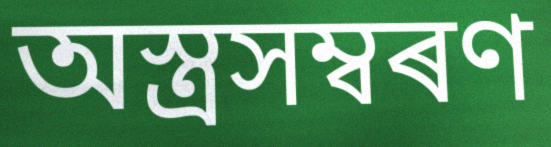
অস্ত্ৰসম্বৰণ